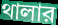
থালার